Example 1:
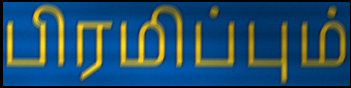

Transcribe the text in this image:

பிரமிப்பும்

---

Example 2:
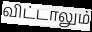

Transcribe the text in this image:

விட்டாலும்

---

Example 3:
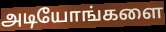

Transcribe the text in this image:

அடியோங்களை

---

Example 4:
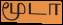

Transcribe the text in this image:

மூடா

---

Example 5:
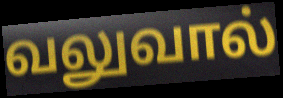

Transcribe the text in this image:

வலுவால்